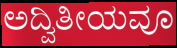
ಅದ್ವಿತೀಯವೂ